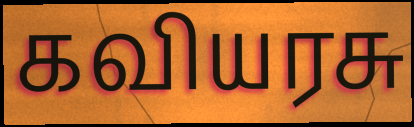
கவியரசு